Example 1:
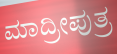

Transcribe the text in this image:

ಮಾದ್ರೀಪುತ್ರ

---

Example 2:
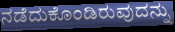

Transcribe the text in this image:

ನಡೆದುಕೊಂಡಿರುವುದನ್ನು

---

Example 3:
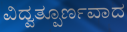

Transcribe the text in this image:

ವಿದ್ವತ್ಪೂರ್ಣವಾದ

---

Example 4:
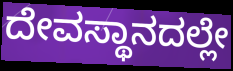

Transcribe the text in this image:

ದೇವಸ್ಥಾನದಲ್ಲೇ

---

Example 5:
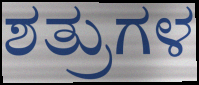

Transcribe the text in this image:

ಶತ್ರುಗಳ